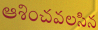
ఆశించవలసిన